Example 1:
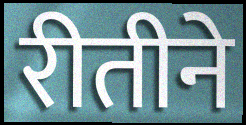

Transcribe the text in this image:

रीतीने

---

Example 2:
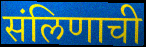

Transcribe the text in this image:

संलिणाची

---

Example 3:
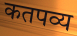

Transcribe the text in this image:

कतपव्य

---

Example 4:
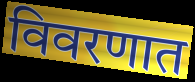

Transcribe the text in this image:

विवरणात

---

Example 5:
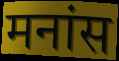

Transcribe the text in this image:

मनांस